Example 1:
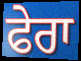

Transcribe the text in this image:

ਫੇਰਾ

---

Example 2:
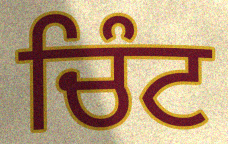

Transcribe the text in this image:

ਚਿੰਟ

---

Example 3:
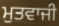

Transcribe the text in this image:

ਮੁਤਵਾਜੀ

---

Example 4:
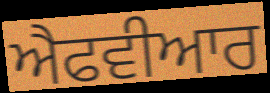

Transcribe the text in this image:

ਐਫਵੀਆਰ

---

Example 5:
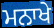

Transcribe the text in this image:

ਮਨਾਖੇ